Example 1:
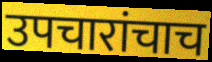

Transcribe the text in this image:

उपचारांचाच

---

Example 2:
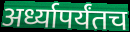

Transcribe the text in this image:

अर्ध्यापर्यंतच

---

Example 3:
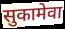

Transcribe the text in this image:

सुकामेवा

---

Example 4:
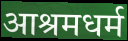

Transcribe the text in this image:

आश्रमधर्म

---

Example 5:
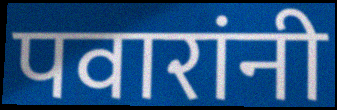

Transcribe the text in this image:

पवारांनी